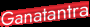
Ganatantra